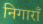
निगाराँ